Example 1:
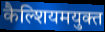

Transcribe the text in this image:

कैल्शियमयुक्त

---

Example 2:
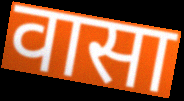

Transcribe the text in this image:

वासा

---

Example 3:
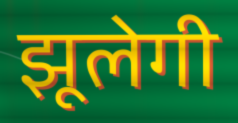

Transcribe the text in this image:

झूलेगी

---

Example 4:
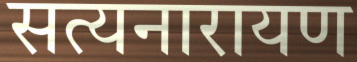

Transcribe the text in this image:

सत्यनारायण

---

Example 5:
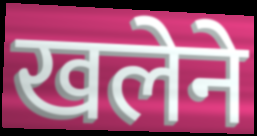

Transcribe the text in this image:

खलेने